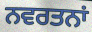
ਨਵਰਤਨਾਂ